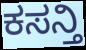
ಕಸನ್ತಿ